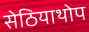
सेठियाथोप